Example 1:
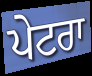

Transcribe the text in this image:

ਪੇਟਰਾ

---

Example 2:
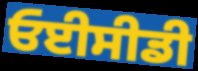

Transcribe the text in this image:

ਓਈਸੀਡੀ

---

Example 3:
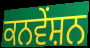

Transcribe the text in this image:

ਕਨਵੇਂਸ਼ਨ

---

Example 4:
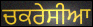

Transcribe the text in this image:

ਚਕਰੇਸੀਆ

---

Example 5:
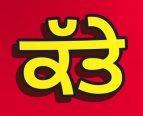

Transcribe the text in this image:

ਕੱਤੇ